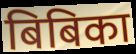
बिबिका